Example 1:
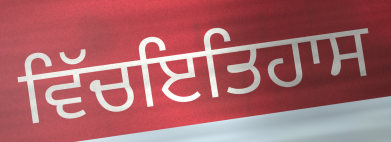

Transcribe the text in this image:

ਵਿੱਚਇਤਿਹਾਸ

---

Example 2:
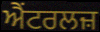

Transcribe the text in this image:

ਐਂਟਰਲਜ਼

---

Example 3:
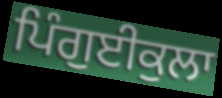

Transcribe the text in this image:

ਪਿੰਗੁਈਕੁਲਾ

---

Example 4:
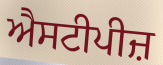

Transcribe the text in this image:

ਐਸਟੀਪੀਜ਼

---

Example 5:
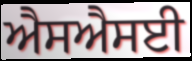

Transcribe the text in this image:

ਐਸਐਸਈ